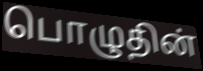
பொழுதின்